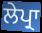
ਲੇਪ੍ਰਾ